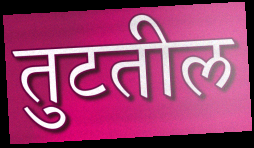
तुटतील